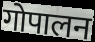
गोपालन